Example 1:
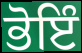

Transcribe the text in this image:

ਭੋਇੰ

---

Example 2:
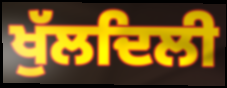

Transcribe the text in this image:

ਖੁੱਲਦਿਲੀ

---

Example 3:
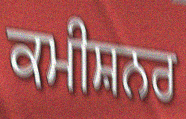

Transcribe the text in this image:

ਕਮੀਸ਼ਨਰ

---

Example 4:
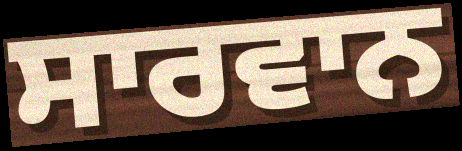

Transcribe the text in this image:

ਸਾਰਵਾਨ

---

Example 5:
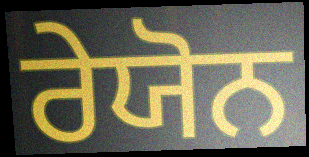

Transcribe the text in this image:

ਰੇਯੋਨ